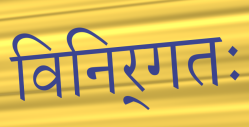
विनिर्गतः